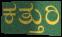
ಕತ್ತುರಿ